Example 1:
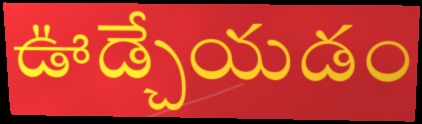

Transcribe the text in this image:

ఊడ్చేయడం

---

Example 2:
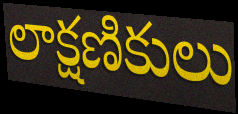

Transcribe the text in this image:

లాక్షణికులు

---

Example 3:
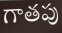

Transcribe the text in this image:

గాతపు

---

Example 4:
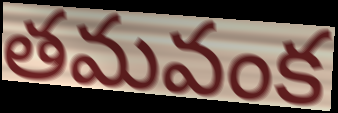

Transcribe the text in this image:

తమవంక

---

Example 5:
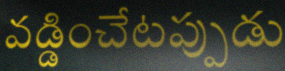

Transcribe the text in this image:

వడ్డించేటప్పుడు